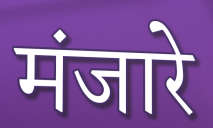
मंजारे